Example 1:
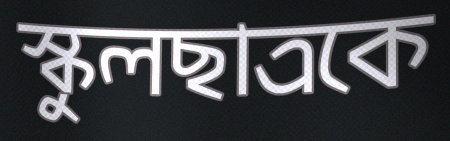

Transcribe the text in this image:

স্কুলছাত্রকে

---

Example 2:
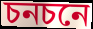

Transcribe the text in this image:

চনচনে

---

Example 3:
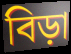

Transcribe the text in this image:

বিড়া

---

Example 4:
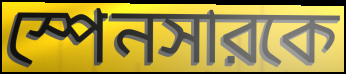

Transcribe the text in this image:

স্পেনসারকে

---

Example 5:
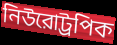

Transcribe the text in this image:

নিউরোট্রপিক